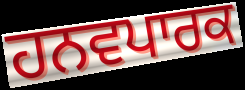
ਹਨਵਪਾਰਕ